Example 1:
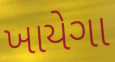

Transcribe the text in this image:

ખાયેગા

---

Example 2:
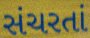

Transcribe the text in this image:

સંચરતાં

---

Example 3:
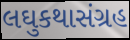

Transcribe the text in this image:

લઘુકથાસંગ્રહ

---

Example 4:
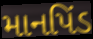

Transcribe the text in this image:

માનપિંડ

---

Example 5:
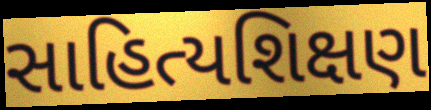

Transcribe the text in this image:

સાહિત્યશિક્ષણ